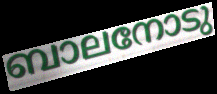
ബാലനോടു